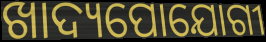
ଖାଦ୍ୟପୋଯୋଗୀ